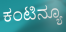
ಕಂಟಿನ್ಯೂ